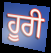
ਹੂਰੀ